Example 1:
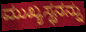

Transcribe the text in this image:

ಮುಖ್ಯಸ್ಥನನ್ನು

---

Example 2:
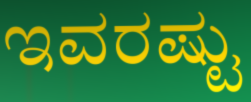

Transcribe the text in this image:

ಇವರಷ್ಟು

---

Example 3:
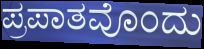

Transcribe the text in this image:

ಪ್ರಪಾತವೊಂದು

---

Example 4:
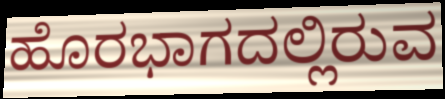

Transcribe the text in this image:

ಹೊರಭಾಗದಲ್ಲಿರುವ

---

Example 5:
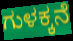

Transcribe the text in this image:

ಗುಳಕ್ಕನೆ